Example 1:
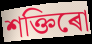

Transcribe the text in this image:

শক্তিৰো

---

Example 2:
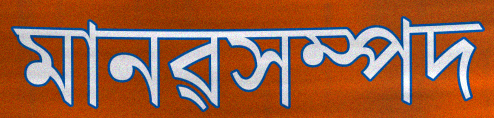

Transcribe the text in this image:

মানৱসম্পদ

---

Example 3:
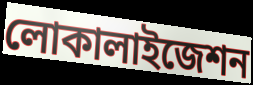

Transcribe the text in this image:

লোকালাইজেশন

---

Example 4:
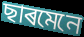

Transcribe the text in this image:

ছাৰমেনে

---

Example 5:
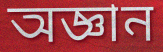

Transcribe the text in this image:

অজ্ঞান